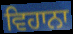
ਵਿਹਾਨਾ